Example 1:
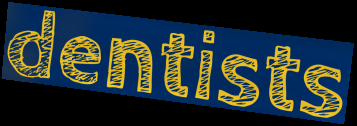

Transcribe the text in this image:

dentists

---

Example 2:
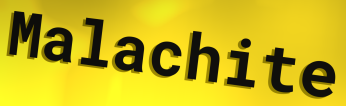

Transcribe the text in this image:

Malachite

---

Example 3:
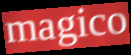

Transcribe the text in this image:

magico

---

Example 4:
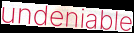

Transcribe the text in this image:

undeniable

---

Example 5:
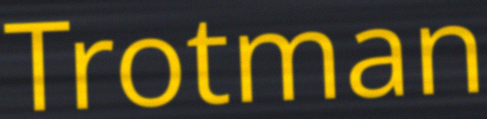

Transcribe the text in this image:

Trotman